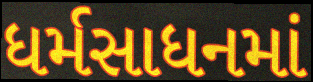
ધર્મસાધનમાં